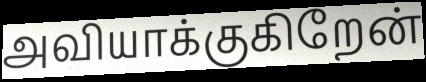
அவியாக்குகிறேன்